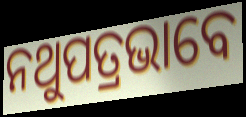
ନଥୁପତ୍ରଭାବେ